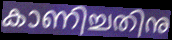
കാണിച്ചതിനു